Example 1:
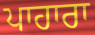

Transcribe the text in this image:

ਪਾਹਾਰਾ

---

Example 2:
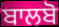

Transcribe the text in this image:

ਬਾਲਬੋ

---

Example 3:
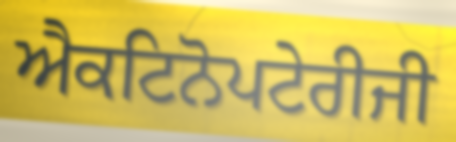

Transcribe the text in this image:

ਐਕਟਿਨੋਪਟੇਰੀਜੀ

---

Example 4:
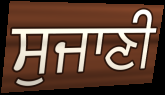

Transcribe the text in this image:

ਸੁਜਾਣੀ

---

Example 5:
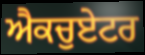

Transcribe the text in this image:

ਐਕਚੁਏਟਰ